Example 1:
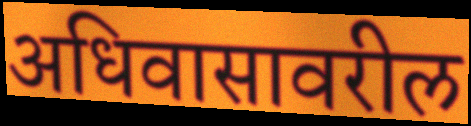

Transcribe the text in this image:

अधिवासावरील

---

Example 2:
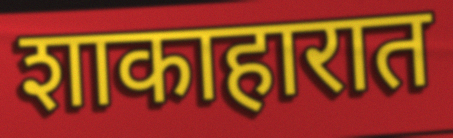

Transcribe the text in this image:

शाकाहारात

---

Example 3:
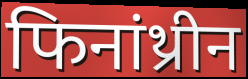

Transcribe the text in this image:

फिनांथ्रीन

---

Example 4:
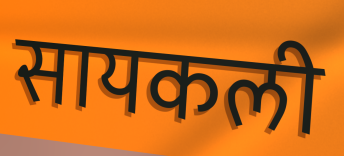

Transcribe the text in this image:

सायकली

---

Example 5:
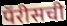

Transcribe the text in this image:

पॅरीसची